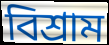
বিশ্ৰাম